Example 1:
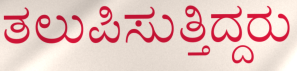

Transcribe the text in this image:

ತಲುಪಿಸುತ್ತಿದ್ದರು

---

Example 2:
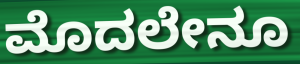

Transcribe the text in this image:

ಮೊದಲೇನೂ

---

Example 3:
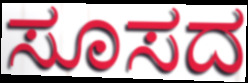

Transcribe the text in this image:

ಸೂಸದ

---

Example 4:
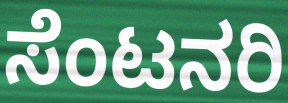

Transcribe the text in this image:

ಸೆಂಟನರಿ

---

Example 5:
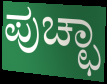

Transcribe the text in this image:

ಪುಚ್ಛಾ